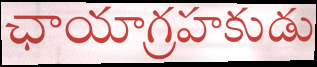
ఛాయాగ్రహకుడు